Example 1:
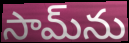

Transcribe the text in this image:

సామ్‌ను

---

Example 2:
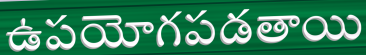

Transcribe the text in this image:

ఉపయోగపడతాయి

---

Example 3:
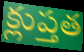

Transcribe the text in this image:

క్లుప్తత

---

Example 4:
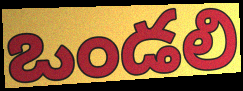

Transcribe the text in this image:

ఒండలి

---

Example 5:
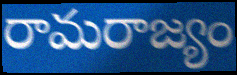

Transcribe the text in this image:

రామరాజ్యం